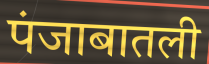
पंजाबातली